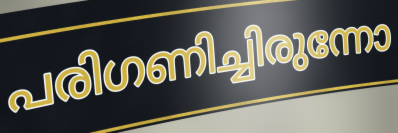
പരിഗണിച്ചിരുന്നോ